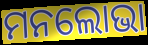
ମନଲୋଭା